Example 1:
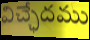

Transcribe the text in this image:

విచ్ఛేదము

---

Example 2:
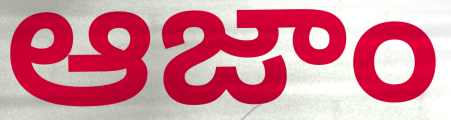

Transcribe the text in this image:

ఆజాం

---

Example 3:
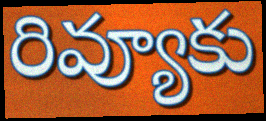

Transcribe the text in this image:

రివ్యూకు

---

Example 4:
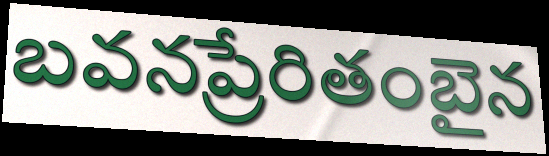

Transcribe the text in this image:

బవనప్రేరితంబైన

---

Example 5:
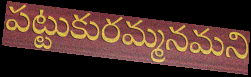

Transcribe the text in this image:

పట్టుకురమ్మనమని